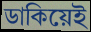
ডাকিয়েই